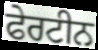
ਫੇਰਟੀਨ